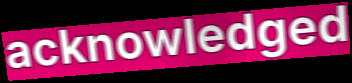
acknowledged